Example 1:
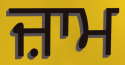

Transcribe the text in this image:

ਜ਼ਾਮ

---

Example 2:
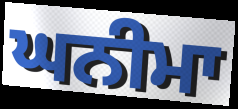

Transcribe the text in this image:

ਘਨੀਮਾ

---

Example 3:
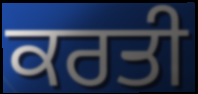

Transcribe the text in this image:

ਕਰਤੀ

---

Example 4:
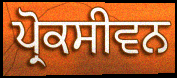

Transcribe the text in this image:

ਪ੍ਰੋਕਸੀਵਨ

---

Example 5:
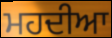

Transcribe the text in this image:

ਮਹਦੀਆ